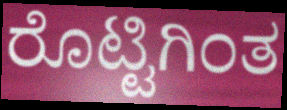
ರೊಟ್ಟಿಗಿಂತ